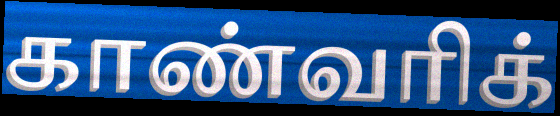
காண்வரிக்